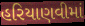
હરિયાણવીમાં